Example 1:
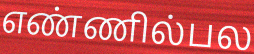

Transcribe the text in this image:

எண்ணில்பல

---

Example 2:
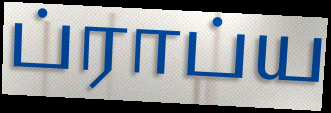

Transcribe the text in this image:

ப்ராப்ய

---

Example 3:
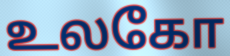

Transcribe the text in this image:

உலகோ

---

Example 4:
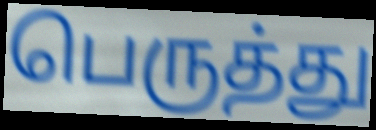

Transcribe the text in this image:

பெருத்து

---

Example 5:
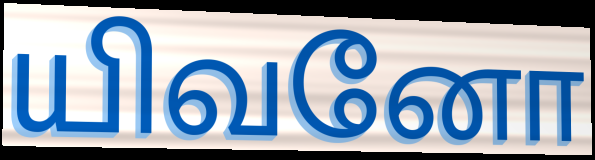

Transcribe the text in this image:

யிவனோ